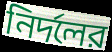
নির্দলের